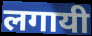
लगायी